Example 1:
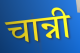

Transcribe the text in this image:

चान्नी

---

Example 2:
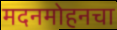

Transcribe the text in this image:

मदनमोहनचा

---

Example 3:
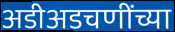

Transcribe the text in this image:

अडीअडचणींच्या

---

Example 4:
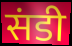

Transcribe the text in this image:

संडी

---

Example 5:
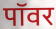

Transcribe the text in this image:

पॉवर